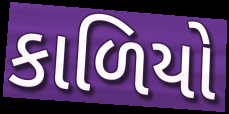
કાળિયો